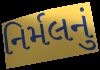
નિર્મલનું